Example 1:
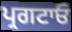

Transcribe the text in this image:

ਪ੍ਰਗਟਾਓ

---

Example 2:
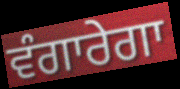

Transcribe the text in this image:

ਵੰਗਾਰੇਗਾ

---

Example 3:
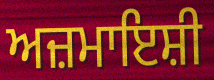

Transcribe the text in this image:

ਅਜ਼ਮਾਇਸ਼ੀ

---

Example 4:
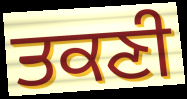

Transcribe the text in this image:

ਤਕਣੀ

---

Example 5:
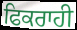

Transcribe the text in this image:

ਫਿਕਰਾਹੀ